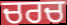
ਚਰਚ